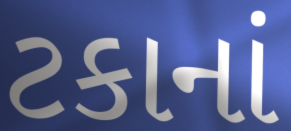
ટકાનાં